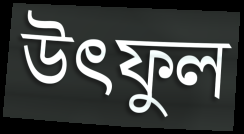
উৎফুল